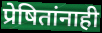
प्रेषितांनाही